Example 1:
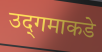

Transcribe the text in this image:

उद्‌गमाकडे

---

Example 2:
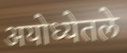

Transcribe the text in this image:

अयोध्येतले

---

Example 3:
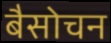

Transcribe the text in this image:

बैसोचन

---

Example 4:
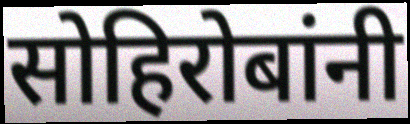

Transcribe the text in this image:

सोहिरोबांनी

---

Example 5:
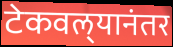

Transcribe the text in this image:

टेकवल्यानंतर